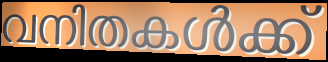
വനിതകൾക്ക്